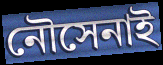
নৌসেনাই